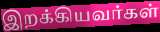
இறக்கியவர்கள்